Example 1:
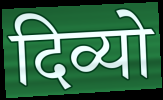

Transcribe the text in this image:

दिव्यो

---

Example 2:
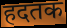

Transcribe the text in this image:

हदतक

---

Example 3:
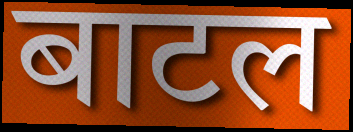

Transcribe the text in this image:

बाटल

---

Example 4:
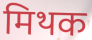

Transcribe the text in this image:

मिथक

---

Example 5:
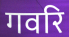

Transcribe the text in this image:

गवरि